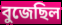
বুজেছিল